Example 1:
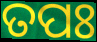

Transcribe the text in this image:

ତପଃ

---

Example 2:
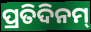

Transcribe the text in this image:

ପ୍ରତିଦିନମ୍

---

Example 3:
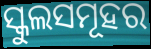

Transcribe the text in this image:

ସ୍କୁଲସମୂହର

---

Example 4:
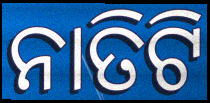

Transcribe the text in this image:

ନାତିଟି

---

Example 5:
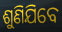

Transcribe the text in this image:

ଶୁଣିଯିବେ